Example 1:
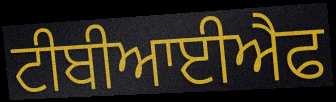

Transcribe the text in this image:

ਟੀਬੀਆਈਐਫ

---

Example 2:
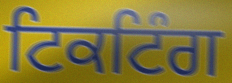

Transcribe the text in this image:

ਟਿਕਟਿੰਗ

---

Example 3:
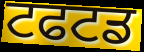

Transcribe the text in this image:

ਟਫਟਡ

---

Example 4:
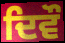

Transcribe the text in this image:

ਦਿਵੌ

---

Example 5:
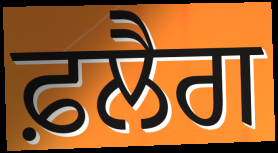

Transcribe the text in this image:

ਫ਼ਲੈਗ